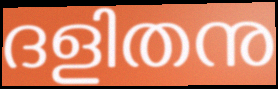
ദളിതനു